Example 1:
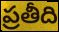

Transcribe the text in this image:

ప్రతీది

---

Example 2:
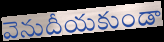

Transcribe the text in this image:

వెనుదీయకుండా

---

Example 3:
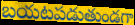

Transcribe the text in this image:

బయటపడుతుండగా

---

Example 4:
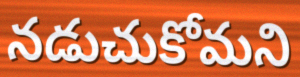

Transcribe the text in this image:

నడుచుకోమని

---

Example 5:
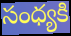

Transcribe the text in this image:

సంధ్యకి